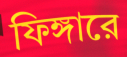
ফিঙ্গারে